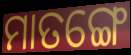
ମାତଙ୍ଗେ